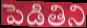
పెడితిని